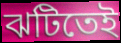
ঝটিতেই